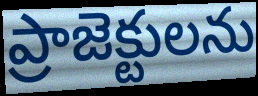
ప్రాజెక్టులను